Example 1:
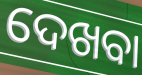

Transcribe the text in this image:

ଦେଖବା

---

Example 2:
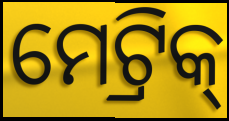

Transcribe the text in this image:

ମେଟ୍ରିକ୍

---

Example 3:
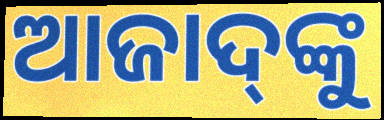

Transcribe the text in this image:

ଆଜାଦ୍‌ଙ୍କୁ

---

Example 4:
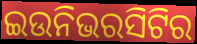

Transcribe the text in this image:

ଇଉନିଭରସିଟିର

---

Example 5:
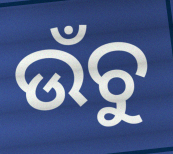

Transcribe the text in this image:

ଉଁଚୁ